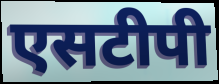
एसटीपी